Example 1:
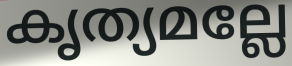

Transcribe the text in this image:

കൃത്യമല്ലേ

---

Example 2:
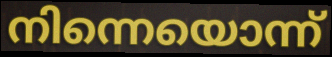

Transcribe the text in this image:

നിന്നെയൊന്ന്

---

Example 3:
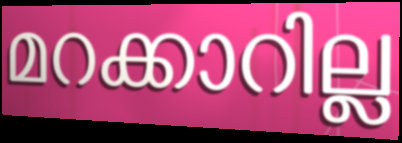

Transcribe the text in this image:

മറക്കാറില്ല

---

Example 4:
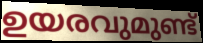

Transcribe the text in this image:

ഉയരവുമുണ്ട്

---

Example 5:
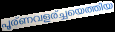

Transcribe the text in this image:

പൂര്ണവളര്ച്ചയെത്തിയ